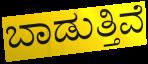
ಬಾಡುತ್ತಿವೆ